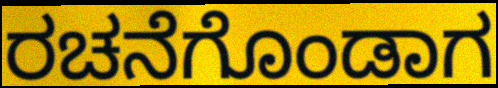
ರಚನೆಗೊಂಡಾಗ